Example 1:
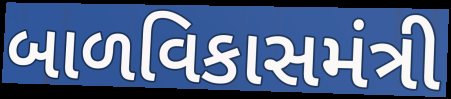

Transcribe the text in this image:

બાળવિકાસમંત્રી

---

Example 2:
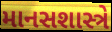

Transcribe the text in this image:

માનસશાસ્ત્રે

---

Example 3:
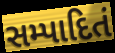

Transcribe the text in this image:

સમ્પાદિતં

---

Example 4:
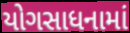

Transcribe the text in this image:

યોગસાધનામાં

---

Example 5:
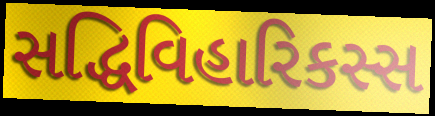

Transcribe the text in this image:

સદ્ધિવિહારિકસ્સ